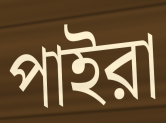
পাইরা